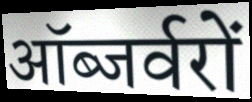
ऑब्जर्वरों